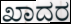
ಖಾದರ